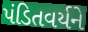
પંડિતવર્યને